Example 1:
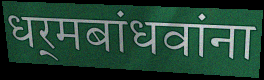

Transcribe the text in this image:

धर्मबांधवांना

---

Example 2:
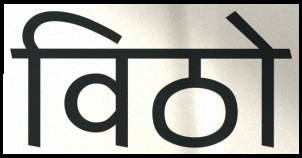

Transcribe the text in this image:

विठो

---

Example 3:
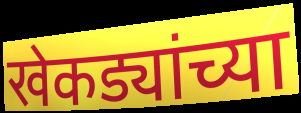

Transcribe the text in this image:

खेकड्यांच्या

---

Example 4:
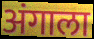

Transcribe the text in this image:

अंगाला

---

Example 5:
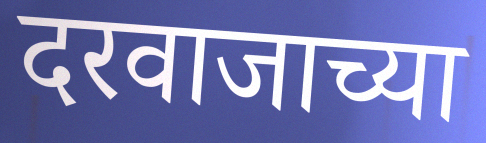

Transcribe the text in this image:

दरवाजाच्या